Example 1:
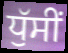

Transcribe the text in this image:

ਧੁੱਸੀਂ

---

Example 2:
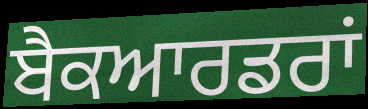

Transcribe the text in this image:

ਬੈਕਆਰਡਰਾਂ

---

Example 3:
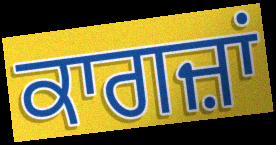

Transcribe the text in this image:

ਕਾਗਜ਼ਾਂ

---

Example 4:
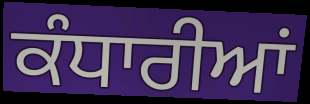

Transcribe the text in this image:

ਕੰਧਾਰੀਆਂ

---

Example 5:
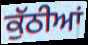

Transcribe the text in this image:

ਕੁੱਠੀਆਂ